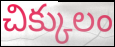
చిక్కులం